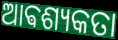
ଆଵଶ୍ୟକତା